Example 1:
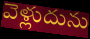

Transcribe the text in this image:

వెళ్లుదును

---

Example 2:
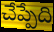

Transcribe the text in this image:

చేప్పేది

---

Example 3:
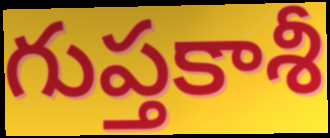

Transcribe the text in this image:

గుప్తకాశీ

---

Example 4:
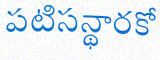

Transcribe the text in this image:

పటిసన్థారకో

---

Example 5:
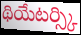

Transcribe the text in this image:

థియేటర్స్కి